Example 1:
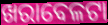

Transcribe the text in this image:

ଖରାବେଳଟା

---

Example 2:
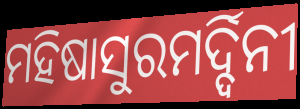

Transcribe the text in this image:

ମହିଷାସୁରମର୍ଦ୍ଦିନୀ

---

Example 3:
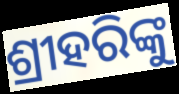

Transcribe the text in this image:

ଶ୍ରୀହରିଙ୍କୁ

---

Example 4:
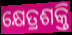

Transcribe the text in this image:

କ୍ଷେତ୍ରଶକ୍ତି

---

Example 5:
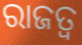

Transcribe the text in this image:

ରାଜତ୍ଵ